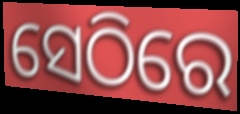
ସେଠିରେ